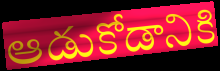
ఆడుకోడానికి